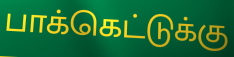
பாக்கெட்டுக்கு